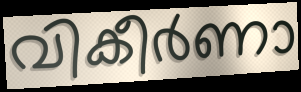
വികീർണാ